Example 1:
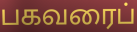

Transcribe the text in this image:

பகவரைப்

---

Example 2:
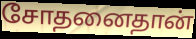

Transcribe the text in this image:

சோதனைதான்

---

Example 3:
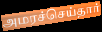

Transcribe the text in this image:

அமரச்செய்தார்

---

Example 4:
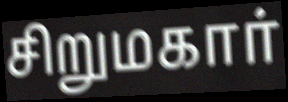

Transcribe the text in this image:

சிறுமகார்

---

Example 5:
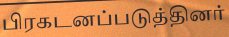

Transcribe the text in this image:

பிரகடனப்படுத்தினர்